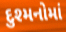
દુશ્મનોમાં